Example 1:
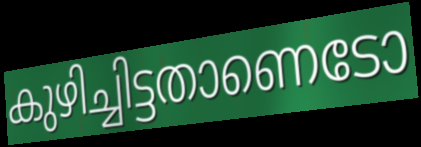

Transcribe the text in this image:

കുഴിച്ചിട്ടതാണെടോ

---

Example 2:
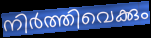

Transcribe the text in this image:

നിർത്തിവെക്കും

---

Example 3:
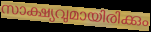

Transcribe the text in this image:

സാക്ഷ്യവുമായിരിക്കും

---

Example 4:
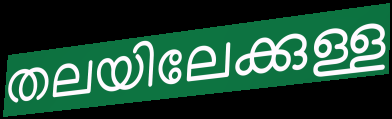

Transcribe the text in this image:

തലയിലേക്കുള്ള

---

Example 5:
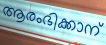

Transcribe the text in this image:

ആരംഭിക്കാന്